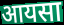
आयसा